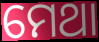
ମେଥା